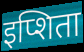
इप्शिता